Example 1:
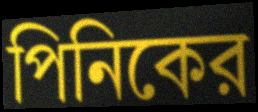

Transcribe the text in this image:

পিনিকের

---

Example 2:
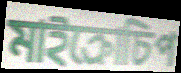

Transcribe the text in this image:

মাইক্রোচিপ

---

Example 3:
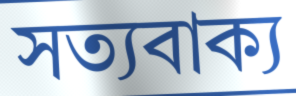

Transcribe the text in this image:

সত্যবাক্য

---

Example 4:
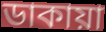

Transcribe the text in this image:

ডাকায়া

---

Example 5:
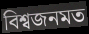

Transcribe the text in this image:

বিশ্বজনমত